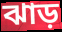
ঝাড়